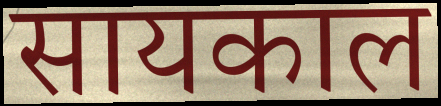
सायकाल